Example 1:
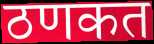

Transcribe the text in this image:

ठणकत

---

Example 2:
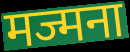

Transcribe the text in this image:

मज्मना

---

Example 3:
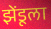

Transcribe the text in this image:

झेंडूला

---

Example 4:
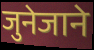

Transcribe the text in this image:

जुनेजाने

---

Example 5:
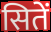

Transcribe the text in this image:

सितें